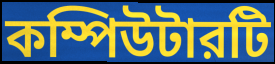
কম্পিউটারটি